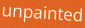
unpainted